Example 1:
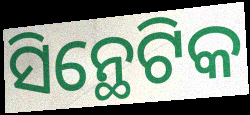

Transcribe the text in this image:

ସିନ୍ଥେଟିକ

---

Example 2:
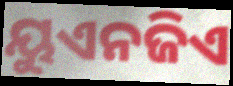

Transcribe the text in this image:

ୟୁଏନଜିଏ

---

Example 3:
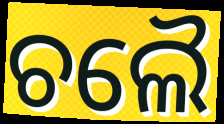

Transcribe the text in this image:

ଚଲୈ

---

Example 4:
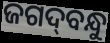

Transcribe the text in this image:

ଜଗଦ୍‌ବନ୍ଧୁ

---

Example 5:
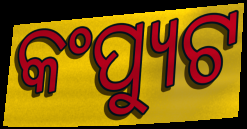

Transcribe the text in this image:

କଂପ୍ୟୁଟ